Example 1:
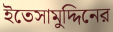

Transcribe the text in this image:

ইতেসামুদ্দিনের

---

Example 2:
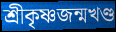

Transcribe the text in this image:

শ্রীকৃষ্ণজন্মখণ্ড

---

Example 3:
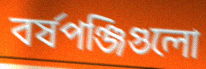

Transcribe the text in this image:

বর্ষপঞ্জিগুলো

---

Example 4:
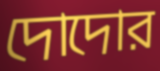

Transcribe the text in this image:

দোদোর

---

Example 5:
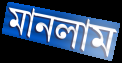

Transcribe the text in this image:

মানলাম